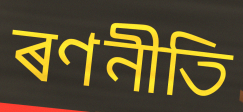
ৰণনীতি